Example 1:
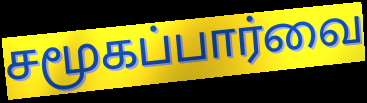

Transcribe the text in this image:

சமூகப்பார்வை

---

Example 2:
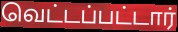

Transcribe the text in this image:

வெட்டப்பட்டார்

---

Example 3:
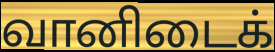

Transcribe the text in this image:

வானிடைக்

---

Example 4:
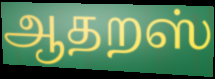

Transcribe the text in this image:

ஆதறஸ்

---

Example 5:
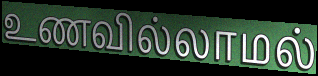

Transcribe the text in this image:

உணவில்லாமல்